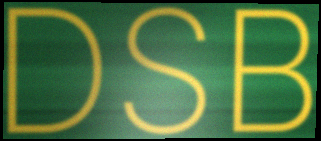
DSB